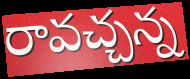
రావచ్చన్న